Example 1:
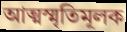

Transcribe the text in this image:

আত্মস্মৃতিমূলক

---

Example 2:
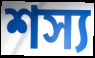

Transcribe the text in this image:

শস্য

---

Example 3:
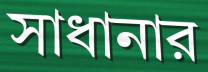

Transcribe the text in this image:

সাধানার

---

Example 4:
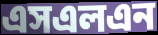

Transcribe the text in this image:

এসএলএন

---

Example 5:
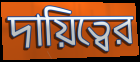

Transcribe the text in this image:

দায়িত্বের